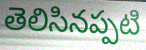
తెలిసినప్పటి